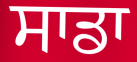
ਸਾਡਾ